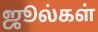
ஜூல்கள்